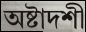
অষ্টাদশী